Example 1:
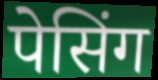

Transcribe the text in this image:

पेसिंग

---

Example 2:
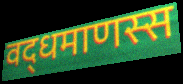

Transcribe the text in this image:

वद्धमाणस्स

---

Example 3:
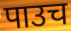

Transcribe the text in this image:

पाउच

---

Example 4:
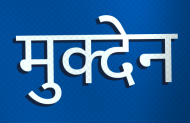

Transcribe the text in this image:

मुक्देन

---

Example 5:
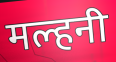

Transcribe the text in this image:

मल्हनी